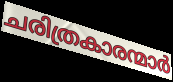
ചരിത്രകാരന്മാർ